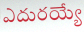
ఎదురయ్యే